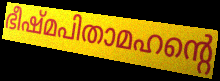
ഭീഷ്മപിതാമഹന്റെ